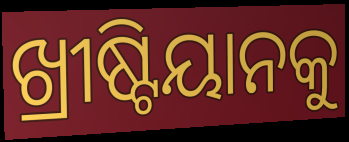
ଖ୍ରୀଷ୍ଟିୟାନକୁ